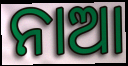
ନାଆ